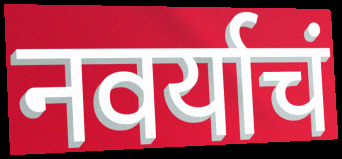
नवर्याचं